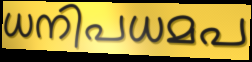
ധനിപധമപ